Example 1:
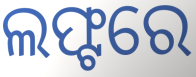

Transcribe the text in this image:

ଲଫ୍ଟରେ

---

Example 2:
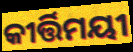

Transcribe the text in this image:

କୀର୍ତ୍ତିମୟୀ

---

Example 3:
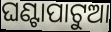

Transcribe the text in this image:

ଘଣ୍ଟାପାଟୁଆ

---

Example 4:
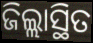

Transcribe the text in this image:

ଜିଲ୍ଲାସ୍ଥିତ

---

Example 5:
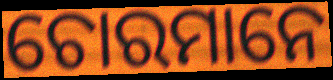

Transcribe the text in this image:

ଚୋରମାନେ